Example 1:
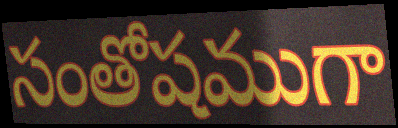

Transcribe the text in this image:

సంతోషముగా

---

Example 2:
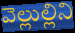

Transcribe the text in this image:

వెల్లుల్లిని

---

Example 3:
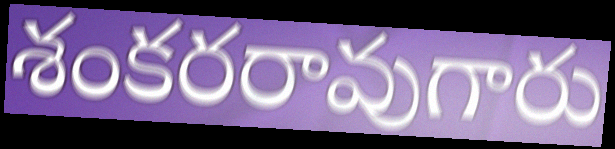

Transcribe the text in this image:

శంకరరావుగారు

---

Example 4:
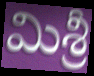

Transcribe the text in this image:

మిశ్రీ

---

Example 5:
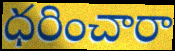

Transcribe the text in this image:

ధరించారా